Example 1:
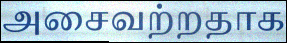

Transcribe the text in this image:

அசைவற்றதாக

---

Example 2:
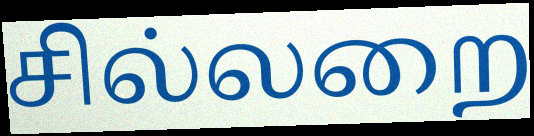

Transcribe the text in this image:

சில்லறை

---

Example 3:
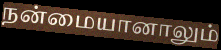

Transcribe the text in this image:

நன்மையானாலும்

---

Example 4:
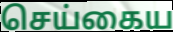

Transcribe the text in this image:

செய்கைய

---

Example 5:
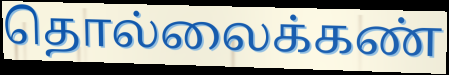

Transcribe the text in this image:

தொல்லைக்கண்